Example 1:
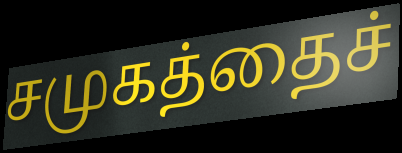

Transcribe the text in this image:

சமுகத்தைச்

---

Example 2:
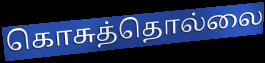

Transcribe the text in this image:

கொசுத்தொல்லை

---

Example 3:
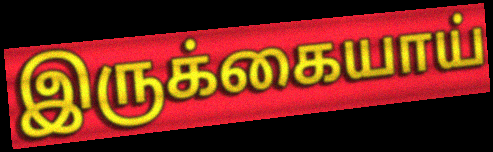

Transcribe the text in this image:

இருக்கையாய்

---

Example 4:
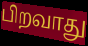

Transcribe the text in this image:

பிறவாது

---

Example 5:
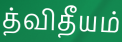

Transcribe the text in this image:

த்விதீயம்